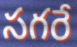
సగరే